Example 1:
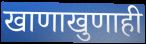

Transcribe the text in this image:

खाणाखुणाही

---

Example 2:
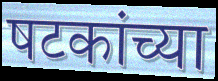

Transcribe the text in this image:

षटकांच्या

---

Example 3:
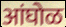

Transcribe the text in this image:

आंघोळ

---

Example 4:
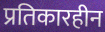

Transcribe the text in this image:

प्रतिकारहीन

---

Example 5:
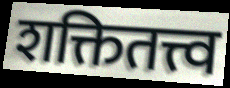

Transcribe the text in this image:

शक्तितत्त्व